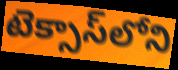
టెక్సాస్‌లోని